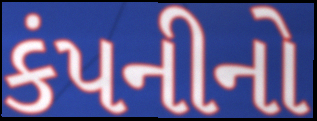
કંપનીનો